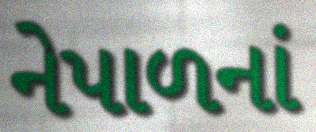
નેપાળનાં